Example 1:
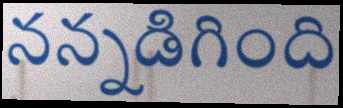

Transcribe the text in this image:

నన్నడిగింది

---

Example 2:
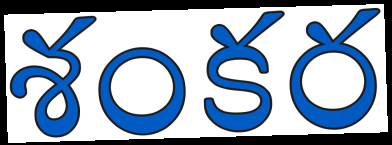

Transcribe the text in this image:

శంకర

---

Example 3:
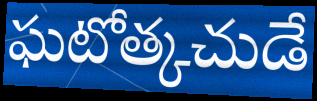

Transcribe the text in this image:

ఘటోత్కచుడే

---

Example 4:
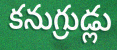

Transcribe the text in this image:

కనుగ్రుడ్లు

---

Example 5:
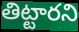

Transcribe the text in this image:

తిట్టారని